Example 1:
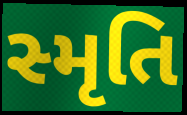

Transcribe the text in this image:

સ્મૃતિ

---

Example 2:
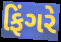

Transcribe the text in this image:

ફિંગરે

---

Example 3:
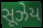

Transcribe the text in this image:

સૂઝેય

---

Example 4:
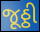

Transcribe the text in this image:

જૂઠ્ઠી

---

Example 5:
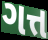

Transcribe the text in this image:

ગત્ત